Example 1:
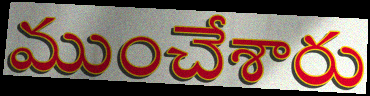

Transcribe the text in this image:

ముంచేశారు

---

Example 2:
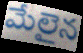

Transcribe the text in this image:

మేలైన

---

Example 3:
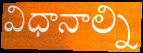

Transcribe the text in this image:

విధానాల్ని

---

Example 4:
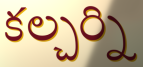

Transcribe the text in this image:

కల్చర్ని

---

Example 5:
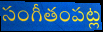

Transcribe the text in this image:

సంగీతంపట్ల